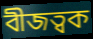
বীজত্বক